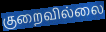
குறைவில்லை